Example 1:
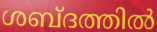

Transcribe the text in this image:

ശബ്ദത്തിൽ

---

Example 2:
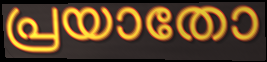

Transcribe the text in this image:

പ്രയാതോ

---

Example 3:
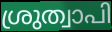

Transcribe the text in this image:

ശ്രുത്വാപി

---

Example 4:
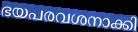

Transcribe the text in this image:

ഭയപരവശനാക്കി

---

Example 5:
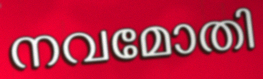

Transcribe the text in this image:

നവമോതി